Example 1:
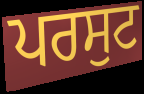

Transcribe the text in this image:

ਪਰਸੁਟ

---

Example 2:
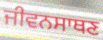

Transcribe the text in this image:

ਜੀਵਨਸਾਥਣ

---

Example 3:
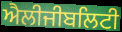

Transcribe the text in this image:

ਐਲੀਜੀਬਲਿਟੀ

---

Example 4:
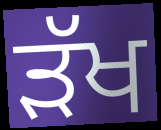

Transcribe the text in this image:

ੜੱਖ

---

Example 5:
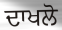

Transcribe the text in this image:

ਦਾਖਲੋ